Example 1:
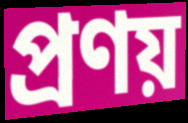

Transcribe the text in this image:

প্রণয়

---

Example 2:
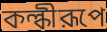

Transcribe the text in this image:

কল্কীরূপে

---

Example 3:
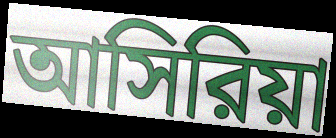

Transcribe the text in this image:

আসিরিয়া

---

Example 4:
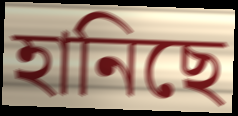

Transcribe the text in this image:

হানিছে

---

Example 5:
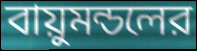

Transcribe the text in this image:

বায়ুমন্ডলের